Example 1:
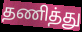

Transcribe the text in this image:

தணித்து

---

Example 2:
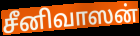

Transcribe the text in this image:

சீனிவாஸன்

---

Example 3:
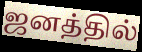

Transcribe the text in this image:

ஜனத்தில்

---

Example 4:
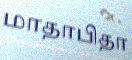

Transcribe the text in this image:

மாதாபிதா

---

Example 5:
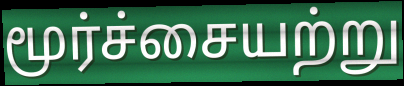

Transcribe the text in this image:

மூர்ச்சையற்று